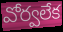
వోర్వలేక